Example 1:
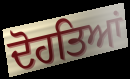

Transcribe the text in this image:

ਦੋਹਤਿਆਂ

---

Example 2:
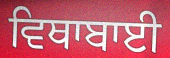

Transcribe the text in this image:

ਵਿਥਾਬਾਈ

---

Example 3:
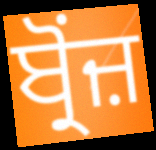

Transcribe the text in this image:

ਬ੍ਰੋਂਜ਼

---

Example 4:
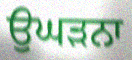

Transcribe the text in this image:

ਉਘੜਨਾ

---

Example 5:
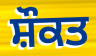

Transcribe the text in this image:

ਸ਼ੌਕਤ